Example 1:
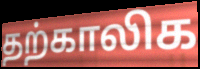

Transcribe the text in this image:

தற்காலிக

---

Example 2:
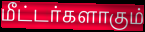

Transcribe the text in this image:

மீட்டர்களாகும்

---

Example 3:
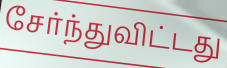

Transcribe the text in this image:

சேர்ந்துவிட்டது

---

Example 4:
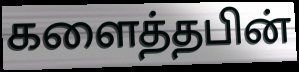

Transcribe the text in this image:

களைத்தபின்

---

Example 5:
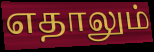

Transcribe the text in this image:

எதாலும்